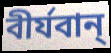
বীর্যবান্